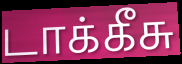
டாக்கீசு